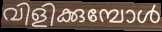
വിളിക്കുമ്പോൾ